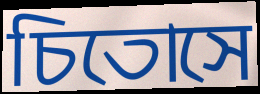
চিতোসে